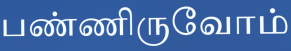
பண்ணிருவோம்